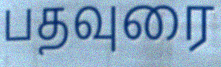
பதவுரை